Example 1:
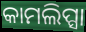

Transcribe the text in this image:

କାମଲିପ୍ସା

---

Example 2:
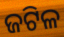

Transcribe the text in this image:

ଜଟିଳ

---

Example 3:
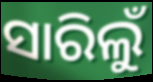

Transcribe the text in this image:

ସାରିଲୁଁ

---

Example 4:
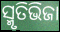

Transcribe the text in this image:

ସ୍ମୃତିଭିଜା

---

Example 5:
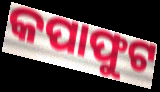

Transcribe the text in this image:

କପାଫୁଟ